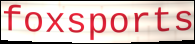
foxsports